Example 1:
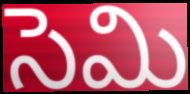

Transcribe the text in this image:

సెమి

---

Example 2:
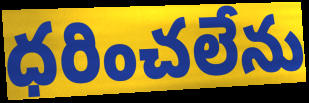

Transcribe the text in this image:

ధరించలేను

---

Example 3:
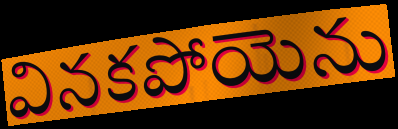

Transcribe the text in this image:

వినకపోయెను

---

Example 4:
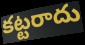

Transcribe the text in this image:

కట్టరాదు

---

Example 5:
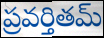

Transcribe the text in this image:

ప్రవర్తితమ్